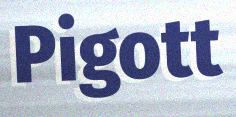
Pigott